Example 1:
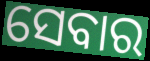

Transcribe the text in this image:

ସେବାର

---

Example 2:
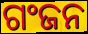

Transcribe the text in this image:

ଗଂଜନ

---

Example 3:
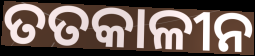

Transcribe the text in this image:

ତତକାଳୀନ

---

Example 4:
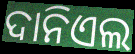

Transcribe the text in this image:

ଦାନିଏଲ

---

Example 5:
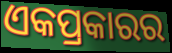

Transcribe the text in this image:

ଏକପ୍ରକାରର